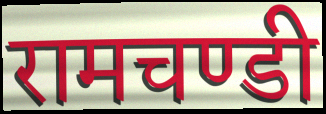
रामचण्डी